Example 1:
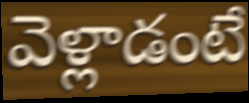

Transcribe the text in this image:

వెళ్లాడంటే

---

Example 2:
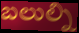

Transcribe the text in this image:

బలుల్ని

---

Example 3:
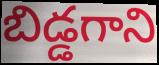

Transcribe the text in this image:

బిడ్డగాని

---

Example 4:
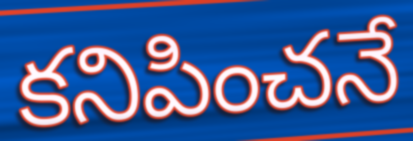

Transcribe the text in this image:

కనిపించనే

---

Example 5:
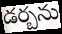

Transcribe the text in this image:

డర్బను